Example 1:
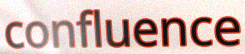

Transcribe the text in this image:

confluence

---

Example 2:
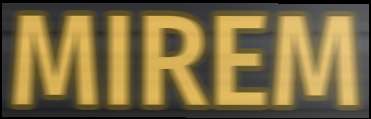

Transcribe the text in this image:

MIREM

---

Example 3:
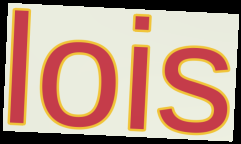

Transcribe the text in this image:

lois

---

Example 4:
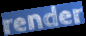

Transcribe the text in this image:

render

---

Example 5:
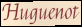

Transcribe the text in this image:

Huguenot